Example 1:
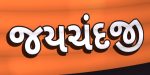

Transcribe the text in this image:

જયચંદજી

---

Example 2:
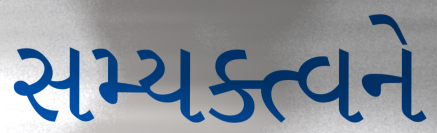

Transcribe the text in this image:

સમ્યક્ત્વને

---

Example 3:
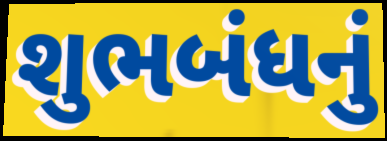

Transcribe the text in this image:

શુભબંધનું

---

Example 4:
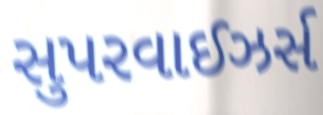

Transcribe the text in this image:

સુપરવાઈઝર્સ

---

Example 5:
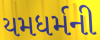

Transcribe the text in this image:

યમધર્મની